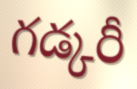
గడ్కరీ